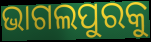
ଭାଗଲପୁରକୁ